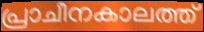
പ്രാചീനകാലത്ത്